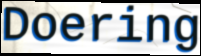
Doering